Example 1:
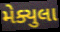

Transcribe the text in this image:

મેક્યુલા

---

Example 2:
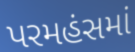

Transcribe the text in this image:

પરમહંસમાં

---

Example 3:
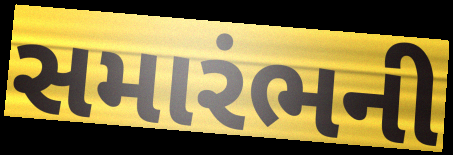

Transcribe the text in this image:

સમારંભની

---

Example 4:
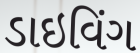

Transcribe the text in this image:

ડાઇવિંગ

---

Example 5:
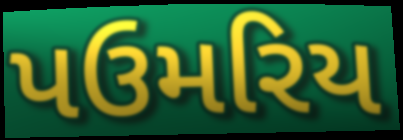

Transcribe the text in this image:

પઉમરિય